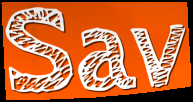
Sav